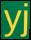
yj